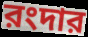
রংদার